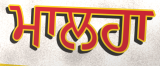
ਮਾਲਹਾ